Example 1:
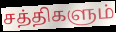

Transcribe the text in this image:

சத்திகளும்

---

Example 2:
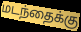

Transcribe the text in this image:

மடந்தைக்கு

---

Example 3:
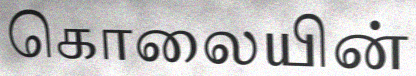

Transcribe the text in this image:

கொலையின்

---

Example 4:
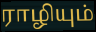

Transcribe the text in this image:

ராழியும்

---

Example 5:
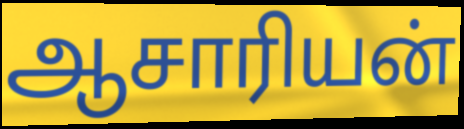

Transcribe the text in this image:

ஆசாரியன்